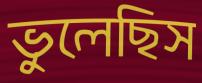
ভুলেছিস